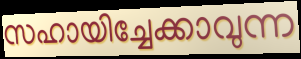
സഹായിച്ചേക്കാവുന്ന